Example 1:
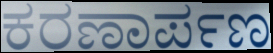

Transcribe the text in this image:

ಕರಣಾರ್ಪಣ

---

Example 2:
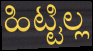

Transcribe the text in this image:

ಹಿಟ್ಟಿಲ್ಲ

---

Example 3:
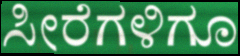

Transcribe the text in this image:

ಸೀರೆಗಳಿಗೂ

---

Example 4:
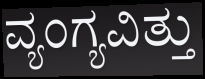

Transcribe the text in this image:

ವ್ಯಂಗ್ಯವಿತ್ತು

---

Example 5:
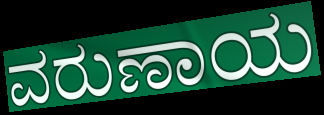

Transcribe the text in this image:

ವರುಣಾಯ